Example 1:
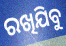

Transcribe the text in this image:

ରଖିଯିବୁ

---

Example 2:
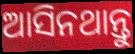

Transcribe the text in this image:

ଆସିନଥାନ୍ତୁ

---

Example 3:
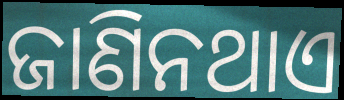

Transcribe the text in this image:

ଜାଣିନଥାଏ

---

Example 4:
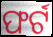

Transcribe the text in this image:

ଫର୍ଟ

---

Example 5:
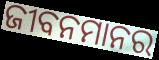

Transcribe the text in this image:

ଜୀବନମାନର